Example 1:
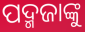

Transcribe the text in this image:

ପଦ୍ମଜାଙ୍କୁ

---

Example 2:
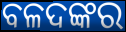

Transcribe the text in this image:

ବଳଦଙ୍କର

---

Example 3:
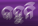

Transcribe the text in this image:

କହୁନି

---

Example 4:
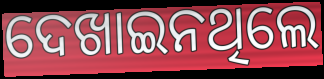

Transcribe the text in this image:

ଦେଖାଇନଥିଲେ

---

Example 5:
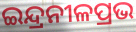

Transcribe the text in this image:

ଇନ୍ଦ୍ରନୀଳପ୍ରଭ